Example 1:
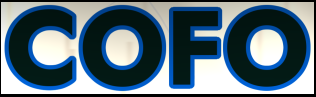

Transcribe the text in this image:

COFO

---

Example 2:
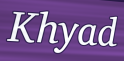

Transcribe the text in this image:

Khyad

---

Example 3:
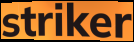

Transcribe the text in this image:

striker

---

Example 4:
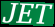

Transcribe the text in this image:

JET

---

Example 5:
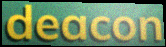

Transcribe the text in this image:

deacon